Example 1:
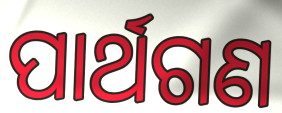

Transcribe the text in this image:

ପାର୍ଥଗଣ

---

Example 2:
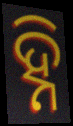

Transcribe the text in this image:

ହ୍ନି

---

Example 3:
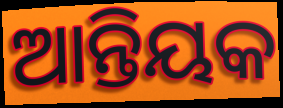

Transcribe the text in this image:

ଆନ୍ତିୟକ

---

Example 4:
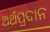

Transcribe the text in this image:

ଅର୍ଥପ୍ରଦାନ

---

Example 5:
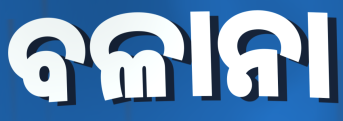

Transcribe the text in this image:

ବଳାନା